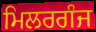
ਮਿਲਰਗੰਜ